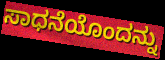
ಸಾಧನೆಯೊಂದನ್ನು